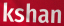
kshan